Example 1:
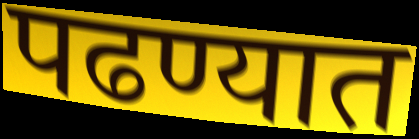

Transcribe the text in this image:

पढण्यात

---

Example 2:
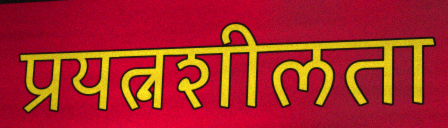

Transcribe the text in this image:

प्रयत्नशीलता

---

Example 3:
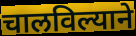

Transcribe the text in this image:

चालविल्याने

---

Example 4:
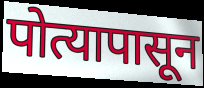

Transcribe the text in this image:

पोत्यापासून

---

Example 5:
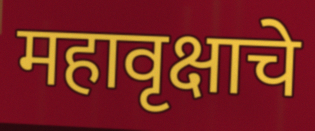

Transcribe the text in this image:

महावृक्षाचे